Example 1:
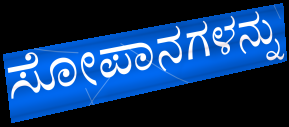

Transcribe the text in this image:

ಸೋಪಾನಗಳನ್ನು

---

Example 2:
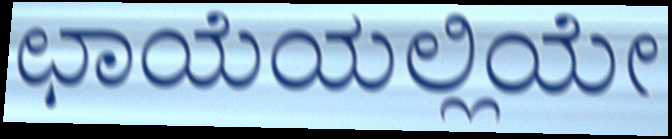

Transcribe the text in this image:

ಛಾಯೆಯಲ್ಲಿಯೇ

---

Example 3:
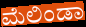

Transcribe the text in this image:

ಮೆಲಿಂಡಾ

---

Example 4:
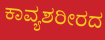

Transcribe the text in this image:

ಕಾವ್ಯಶರೀರದ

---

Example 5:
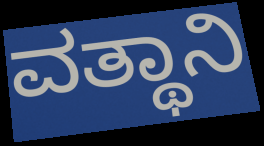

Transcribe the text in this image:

ವತ್ಥಾನಿ